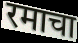
रमाचा